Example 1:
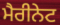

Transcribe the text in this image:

ਮੈਰੀਨੇਟ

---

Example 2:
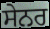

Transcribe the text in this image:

ਸੇਨਰ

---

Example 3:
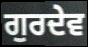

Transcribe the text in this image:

ਗੁਰਦੇਵ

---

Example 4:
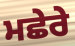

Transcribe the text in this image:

ਮਛੇਰੇ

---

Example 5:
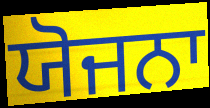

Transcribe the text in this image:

ਯੋਜਨਾ